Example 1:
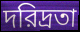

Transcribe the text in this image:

দরিদ্রতা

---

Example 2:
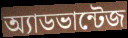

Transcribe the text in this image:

অ্যাডভান্টেজ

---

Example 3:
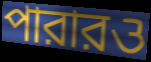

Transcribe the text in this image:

পারারও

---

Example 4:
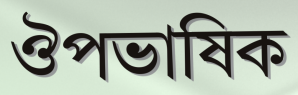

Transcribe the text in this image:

ঔপভাষিক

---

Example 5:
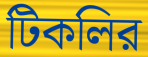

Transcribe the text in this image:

টিকলির